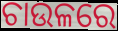
ଚାଉଳରେ